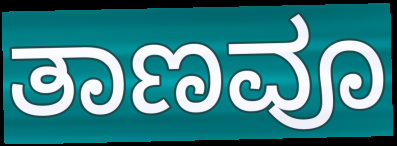
ತಾಣವೂ